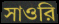
সাওরি